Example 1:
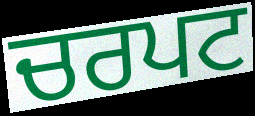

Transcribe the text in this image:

ਚਰਪਟ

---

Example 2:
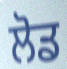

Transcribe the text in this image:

ਲੋਡ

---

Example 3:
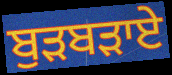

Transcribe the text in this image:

ਬੁੜਬੜਾਏ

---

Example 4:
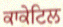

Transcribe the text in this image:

ਕਾਕੇਟਿਲ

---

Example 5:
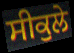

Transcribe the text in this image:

ਸੀਕੁਲੇ